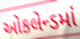
ઓકલેન્ડમાં